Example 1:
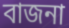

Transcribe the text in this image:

বাজনা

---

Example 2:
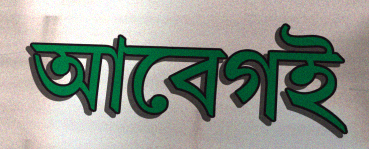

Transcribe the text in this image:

আবেগই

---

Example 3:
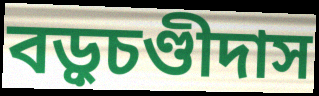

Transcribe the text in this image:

বড়ুচণ্ডীদাস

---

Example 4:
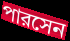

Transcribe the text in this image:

পারসেন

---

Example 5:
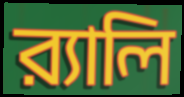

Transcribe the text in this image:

র‍্যালি